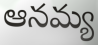
ఆనమ్య